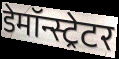
डेमॉन्स्ट्रेटर